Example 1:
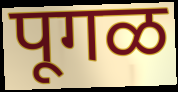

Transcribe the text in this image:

पूगळ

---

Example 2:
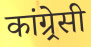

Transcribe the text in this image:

कांग्र्रेसी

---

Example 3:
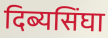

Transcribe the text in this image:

दिब्यसिंघा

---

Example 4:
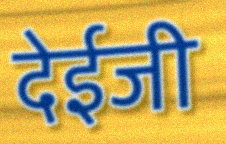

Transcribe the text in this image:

देईजी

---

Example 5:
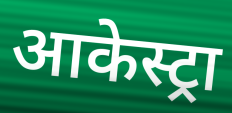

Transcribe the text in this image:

आकेस्ट्रा